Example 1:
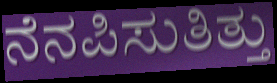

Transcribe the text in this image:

ನೆನಪಿಸುತಿತ್ತು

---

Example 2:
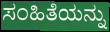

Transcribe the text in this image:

ಸಂಹಿತೆಯನ್ನು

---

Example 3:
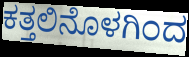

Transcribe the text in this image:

ಕತ್ತಲಿನೊಳಗಿಂದ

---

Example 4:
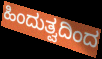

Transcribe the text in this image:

ಹಿಂದುತ್ವದಿಂದ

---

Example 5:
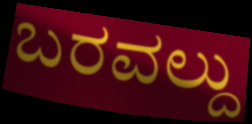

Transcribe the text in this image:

ಬರವಲ್ದು